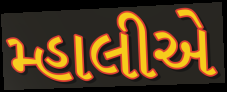
મ્હાલીએ